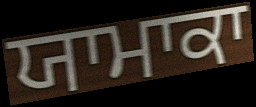
ਯਾਮਾਕਾ